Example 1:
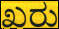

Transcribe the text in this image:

ಖರು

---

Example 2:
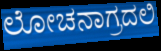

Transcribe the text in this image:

ಲೋಚನಾಗ್ರದಲಿ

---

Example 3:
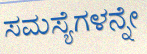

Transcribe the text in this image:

ಸಮಸ್ಯೆಗಳನ್ನೇ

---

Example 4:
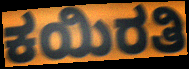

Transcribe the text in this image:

ಕಯಿರತಿ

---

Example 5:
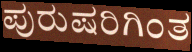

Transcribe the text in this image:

ಪುರುಷರಿಗಿಂತ